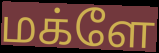
மக்ளே